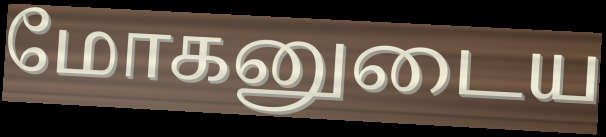
மோகனுடைய